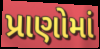
પ્રાણોમાં